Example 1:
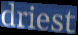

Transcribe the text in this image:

driest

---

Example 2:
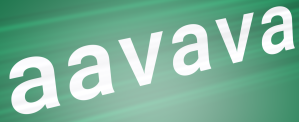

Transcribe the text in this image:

aavava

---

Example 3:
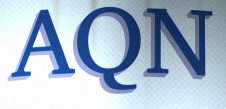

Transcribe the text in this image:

AQN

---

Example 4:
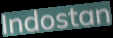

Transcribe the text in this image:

Indostan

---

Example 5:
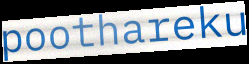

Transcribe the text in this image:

poothareku